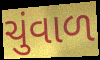
ચુંવાળ